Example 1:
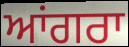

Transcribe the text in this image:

ਆਂਗਰਾ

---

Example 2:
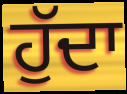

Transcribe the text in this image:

ਹੁੱਦਾ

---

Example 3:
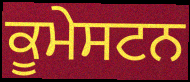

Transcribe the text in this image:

ਕੂਮੇਸਟਨ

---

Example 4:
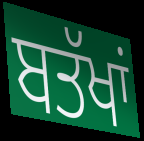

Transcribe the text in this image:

ਬਤੱਖਾਂ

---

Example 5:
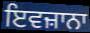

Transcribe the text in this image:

ਇਵਜ਼ਾਨਾ